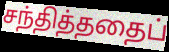
சந்தித்ததைப்